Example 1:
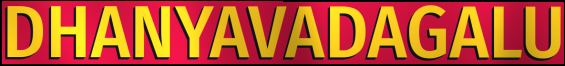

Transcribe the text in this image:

DHANYAVADAGALU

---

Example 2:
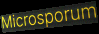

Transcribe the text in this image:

Microsporum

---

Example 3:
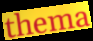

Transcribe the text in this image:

thema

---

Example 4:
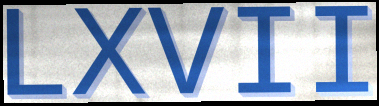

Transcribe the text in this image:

LXVII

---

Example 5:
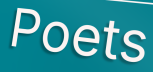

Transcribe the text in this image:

Poets